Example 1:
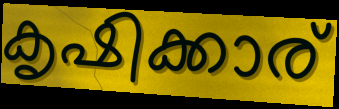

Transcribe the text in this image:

കൃഷിക്കാര്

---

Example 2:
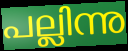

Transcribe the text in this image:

പല്ലിന്നു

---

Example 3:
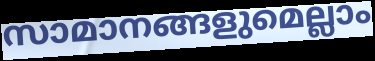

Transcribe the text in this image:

സാമാനങ്ങളുമെല്ലാം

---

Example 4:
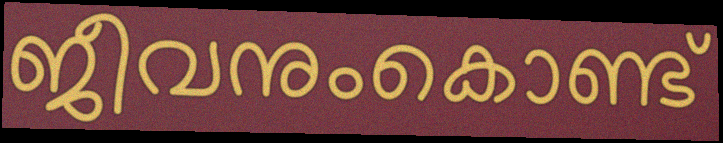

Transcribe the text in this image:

ജീവനുംകൊണ്ട്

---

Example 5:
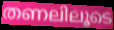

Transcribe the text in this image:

തണലിലൂടെ